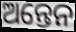
ଅନ୍ତେନ